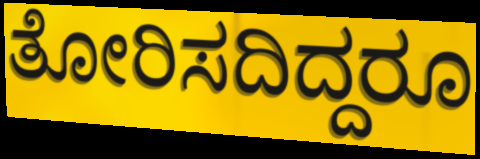
ತೋರಿಸದಿದ್ದರೂ